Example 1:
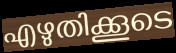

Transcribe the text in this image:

എഴുതിക്കൂടെ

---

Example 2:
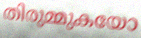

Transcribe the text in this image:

തിരുമ്മുകയോ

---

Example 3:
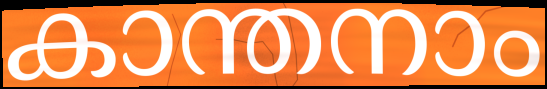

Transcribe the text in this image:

കാന്തനാം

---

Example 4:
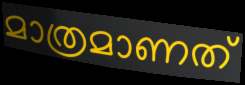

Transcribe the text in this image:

മാത്രമാണത്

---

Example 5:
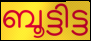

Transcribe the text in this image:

ബൂട്ടിട്ട